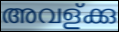
അവള്ക്കു